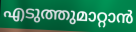
എടുത്തുമാറ്റാൻ